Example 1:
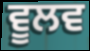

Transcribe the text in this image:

ਵੂਲਵ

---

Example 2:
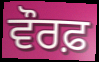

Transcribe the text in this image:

ਵੌਰਫ਼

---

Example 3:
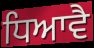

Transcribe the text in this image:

ਧਿਆਵੈ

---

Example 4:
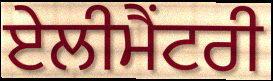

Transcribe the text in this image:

ਏਲੀਮੈਂਟਰੀ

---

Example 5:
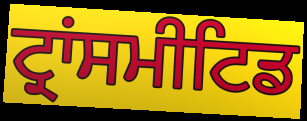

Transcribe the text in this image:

ਟ੍ਰਾਂਸਮੀਟਿਡ